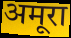
अमूरा